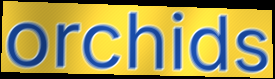
orchids